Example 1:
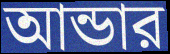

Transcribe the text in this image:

আন্ডার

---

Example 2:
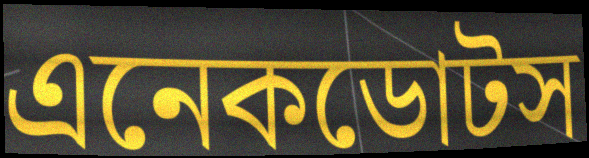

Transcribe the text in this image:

এনেকডোটস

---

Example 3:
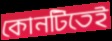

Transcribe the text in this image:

কোনটিতেই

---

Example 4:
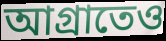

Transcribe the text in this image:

আগ্রাতেও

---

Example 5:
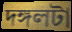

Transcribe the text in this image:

দঙ্গলটা